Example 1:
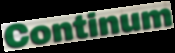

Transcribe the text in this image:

Continum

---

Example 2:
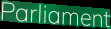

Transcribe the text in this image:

Parliament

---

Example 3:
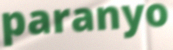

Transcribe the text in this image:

paranyo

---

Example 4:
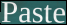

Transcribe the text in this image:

Paste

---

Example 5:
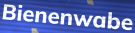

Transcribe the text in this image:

Bienenwabe